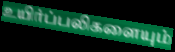
உயிர்ப்பலிகளையும்